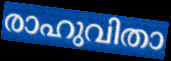
രാഹുവിതാ